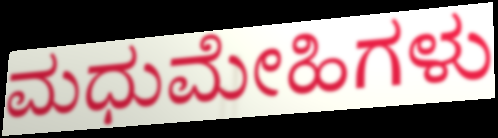
ಮಧುಮೇಹಿಗಳು